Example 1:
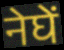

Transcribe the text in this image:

नेघें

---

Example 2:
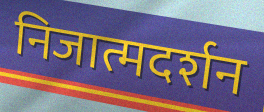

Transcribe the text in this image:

निजात्मदर्शन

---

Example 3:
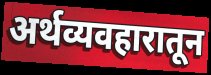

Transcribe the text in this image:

अर्थव्यवहारातून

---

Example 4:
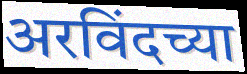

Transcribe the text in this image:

अरविंदच्या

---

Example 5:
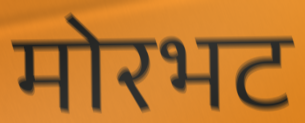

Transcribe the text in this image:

मोरभट